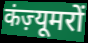
कंज़्यूमरों